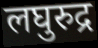
लघुरुद्र